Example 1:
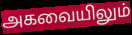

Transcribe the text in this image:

அகவையிலும்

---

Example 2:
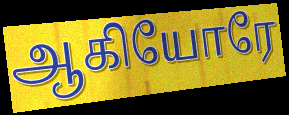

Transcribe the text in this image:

ஆகியோரே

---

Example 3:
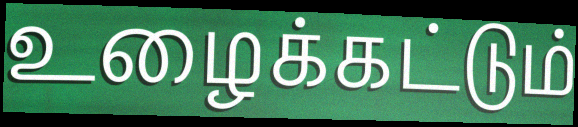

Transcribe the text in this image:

உழைக்கட்டும்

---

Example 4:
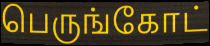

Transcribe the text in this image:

பெருங்கோட்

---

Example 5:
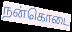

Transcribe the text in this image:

நன்கொடை